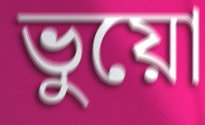
ভুয়ো